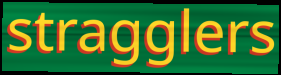
stragglers